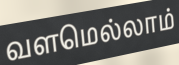
வளமெல்லாம்